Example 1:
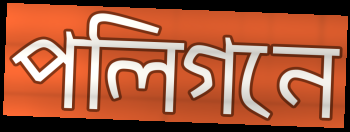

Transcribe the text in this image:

পলিগনে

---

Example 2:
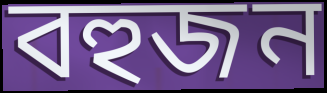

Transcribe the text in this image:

বহুজন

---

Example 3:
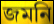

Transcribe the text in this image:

জমনি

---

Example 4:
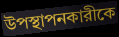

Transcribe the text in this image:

উপস্থাপনকারীকে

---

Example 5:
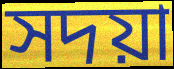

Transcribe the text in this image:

সদয়া